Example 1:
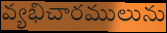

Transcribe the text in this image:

వ్యభిచారములును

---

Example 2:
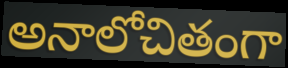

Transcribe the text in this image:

అనాలోచితంగా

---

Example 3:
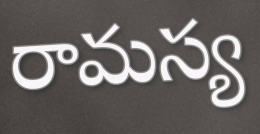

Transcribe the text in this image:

రామస్య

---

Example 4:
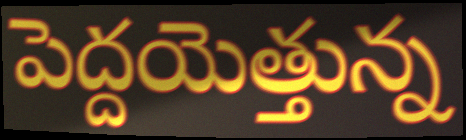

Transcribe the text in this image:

పెద్దయెత్తున్న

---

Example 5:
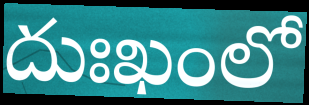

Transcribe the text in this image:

దుఃఖంలో